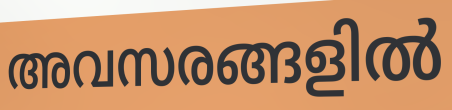
അവസരങ്ങളിൽ